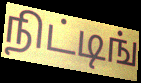
நிட்டிங்